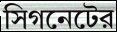
সিগনেটের